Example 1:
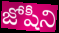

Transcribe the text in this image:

జోషీని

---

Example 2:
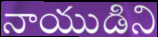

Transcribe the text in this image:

నాయుడిని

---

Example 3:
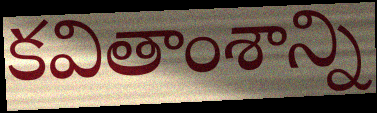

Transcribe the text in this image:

కవితాంశాన్ని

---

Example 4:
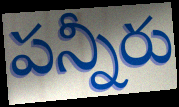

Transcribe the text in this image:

పన్నీరు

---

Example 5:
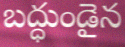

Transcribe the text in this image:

బద్ధుండైన